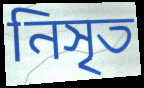
নিসৃত